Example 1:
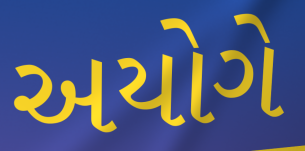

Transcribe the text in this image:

અયોગે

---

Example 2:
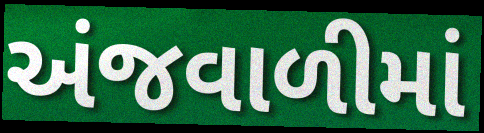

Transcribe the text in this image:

અંજવાળીમાં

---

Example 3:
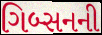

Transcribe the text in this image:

ગિબ્સનની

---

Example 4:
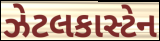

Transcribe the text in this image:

ઝેટલકાસ્ટેન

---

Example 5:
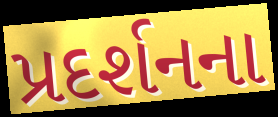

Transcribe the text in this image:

પ્રદર્શનના